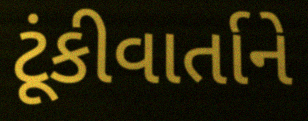
ટૂંકીવાર્તાને